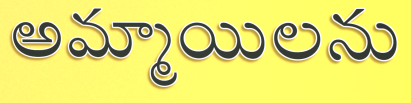
అమ్మాయిలను